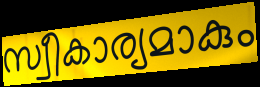
സ്വീകാര്യമാകും